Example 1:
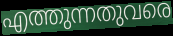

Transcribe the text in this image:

എത്തുന്നതുവരെ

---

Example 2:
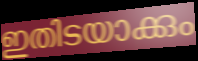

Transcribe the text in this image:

ഇതിടയാക്കും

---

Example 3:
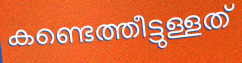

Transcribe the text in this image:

കണ്ടെത്തീട്ടുള്ളത്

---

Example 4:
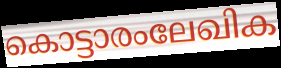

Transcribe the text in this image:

കൊട്ടാരംലേഖിക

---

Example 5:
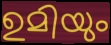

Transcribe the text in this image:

ഉമിയും